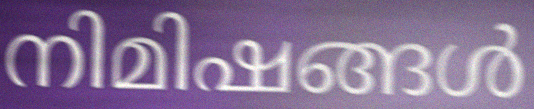
നിമിഷങ്ങൾ